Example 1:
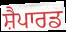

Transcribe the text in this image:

ਸ਼ੈਪਾਰਡ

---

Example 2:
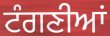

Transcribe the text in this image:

ਟੰਗਣੀਆਂ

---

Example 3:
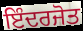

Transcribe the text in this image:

ਇੰਦਰਜੋਤ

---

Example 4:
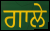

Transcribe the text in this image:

ਗਾਲੇ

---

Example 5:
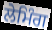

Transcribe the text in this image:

ਲੇਮਿੰਗ